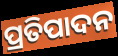
ପ୍ରତିପାଦନ